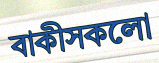
বাকীসকলো